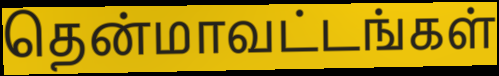
தென்மாவட்டங்கள்